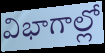
విభాగాల్లో